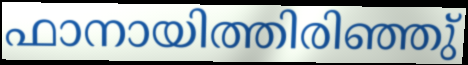
ഫാനായിത്തിരിഞ്ഞു്